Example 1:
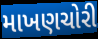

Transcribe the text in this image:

માખણચોરી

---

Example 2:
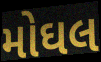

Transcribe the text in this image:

મોઘલ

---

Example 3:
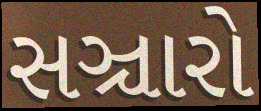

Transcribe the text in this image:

સઞ્ચારો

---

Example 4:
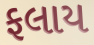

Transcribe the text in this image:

ફલાય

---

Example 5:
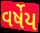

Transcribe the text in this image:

વર્ષેય